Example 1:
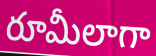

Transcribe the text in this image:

రూమీలాగా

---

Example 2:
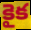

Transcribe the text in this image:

కైక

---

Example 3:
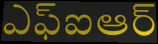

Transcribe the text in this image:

ఎఫ్ఐఆర్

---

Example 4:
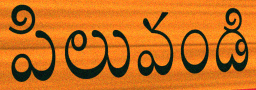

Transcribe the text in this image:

పిలువండి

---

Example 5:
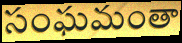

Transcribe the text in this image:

సంఘమంతా